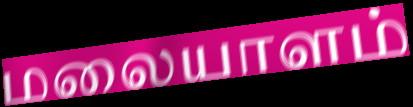
மலையாளம்